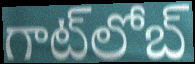
గాట్‍లోబ్